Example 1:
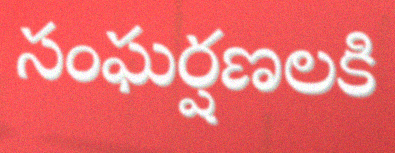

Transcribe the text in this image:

సంఘర్షణలకి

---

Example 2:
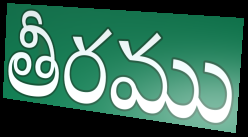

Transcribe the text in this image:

తీరము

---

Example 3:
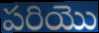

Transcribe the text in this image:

పరియొ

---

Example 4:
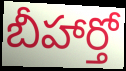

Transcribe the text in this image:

బీహార్తో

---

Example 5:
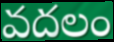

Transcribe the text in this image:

వదలం